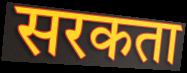
सरकता